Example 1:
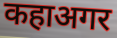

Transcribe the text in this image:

कहाअगर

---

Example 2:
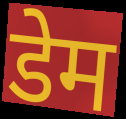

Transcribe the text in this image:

डेम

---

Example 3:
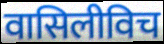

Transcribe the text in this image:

वासिलीविच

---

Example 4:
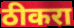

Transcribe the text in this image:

ठीकरा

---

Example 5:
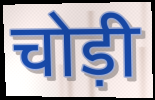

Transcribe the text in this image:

चोड़ी